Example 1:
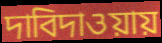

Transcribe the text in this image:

দাবিদাওয়ায়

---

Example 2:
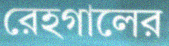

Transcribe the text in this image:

রেহগালের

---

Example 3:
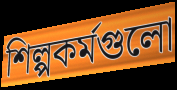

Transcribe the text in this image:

শিল্পকর্মগুলো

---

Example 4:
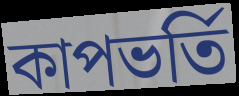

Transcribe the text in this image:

কাপভর্তি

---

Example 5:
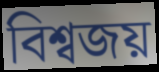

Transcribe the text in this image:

বিশ্বজয়